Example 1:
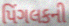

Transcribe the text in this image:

પિંગલકની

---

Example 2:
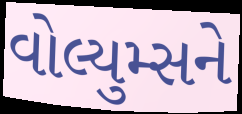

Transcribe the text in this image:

વોલ્યુમ્સને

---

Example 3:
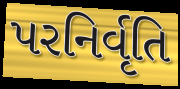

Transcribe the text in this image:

પરનિર્વૃતિ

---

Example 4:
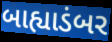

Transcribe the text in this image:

બાહ્યાડંબર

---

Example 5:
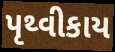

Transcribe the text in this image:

પૃથ્વીકાય